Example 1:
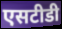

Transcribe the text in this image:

एसटीडी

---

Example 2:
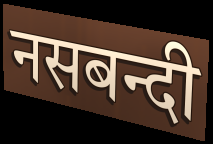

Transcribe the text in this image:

नसबन्दी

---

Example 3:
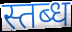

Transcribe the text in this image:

स्तब्ध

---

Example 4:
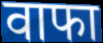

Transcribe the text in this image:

वाफा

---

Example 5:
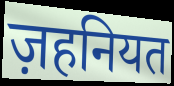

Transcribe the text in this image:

ज़हनियत